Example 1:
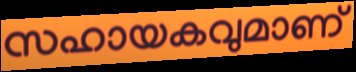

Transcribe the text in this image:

സഹായകവുമാണ്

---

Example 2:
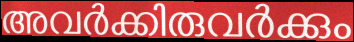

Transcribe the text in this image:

അവർക്കിരുവർക്കും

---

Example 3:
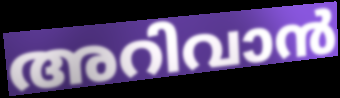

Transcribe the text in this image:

അറിവാൻ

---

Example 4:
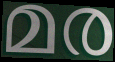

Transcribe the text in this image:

മര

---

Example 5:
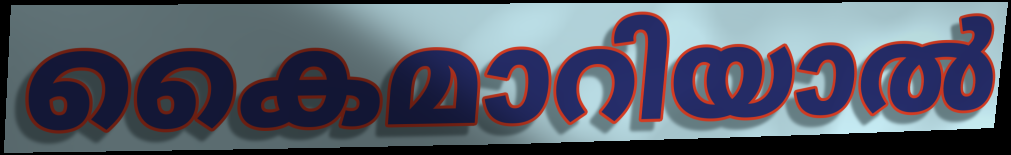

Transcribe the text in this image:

കൈമാറിയാൽ